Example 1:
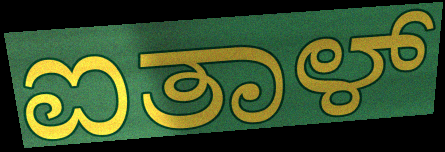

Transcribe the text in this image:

ಐತಾಳ್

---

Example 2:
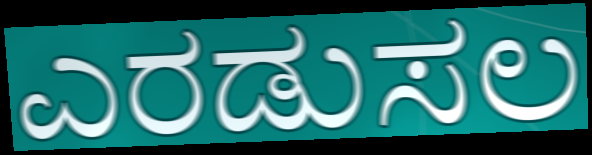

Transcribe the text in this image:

ಎರಡುಸಲ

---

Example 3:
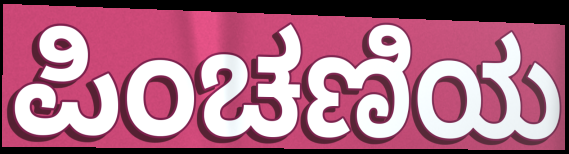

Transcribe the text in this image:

ಪಿಂಚಣಿಯ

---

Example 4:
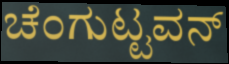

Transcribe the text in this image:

ಚೆಂಗುಟ್ಟವನ್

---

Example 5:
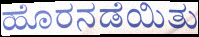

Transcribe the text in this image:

ಹೊರನಡೆಯಿತು